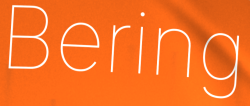
Bering